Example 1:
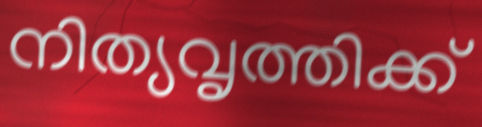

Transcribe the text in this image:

നിത്യവൃത്തിക്ക്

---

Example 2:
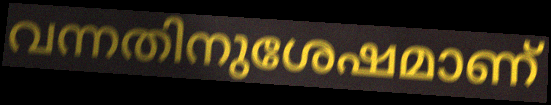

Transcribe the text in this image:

വന്നതിനുശേഷമാണ്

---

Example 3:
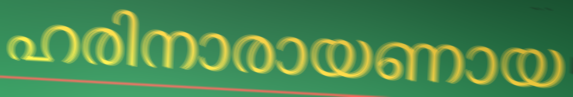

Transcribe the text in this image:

ഹരിനാരായണായ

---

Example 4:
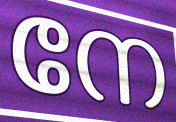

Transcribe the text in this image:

നേ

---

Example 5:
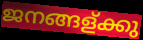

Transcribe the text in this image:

ജനങ്ങള്ക്കു